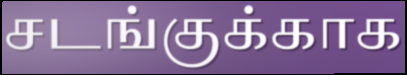
சடங்குக்காக